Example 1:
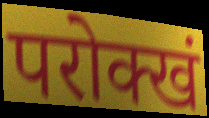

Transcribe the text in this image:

परोक्खं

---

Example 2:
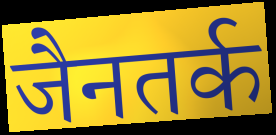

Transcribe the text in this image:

जैनतर्क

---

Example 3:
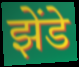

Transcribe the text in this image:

झेंडे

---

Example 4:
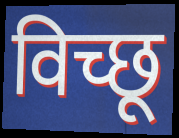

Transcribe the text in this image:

विच्छू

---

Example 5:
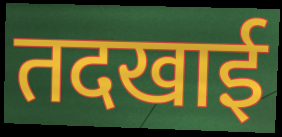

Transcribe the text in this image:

तदखाई